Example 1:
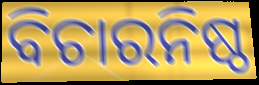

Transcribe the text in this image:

ବିଚାରନିଷ୍ଠ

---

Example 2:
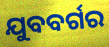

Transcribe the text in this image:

ଯୁବବର୍ଗର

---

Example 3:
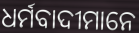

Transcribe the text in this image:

ଧର୍ମବାଦୀମାନେ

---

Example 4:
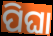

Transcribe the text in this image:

ପିଘା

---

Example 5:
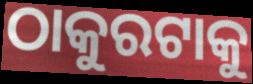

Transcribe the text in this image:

ଠାକୁରଟାକୁ